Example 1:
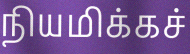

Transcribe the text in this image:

நியமிக்கச்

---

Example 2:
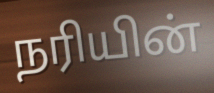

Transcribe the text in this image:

நரியின்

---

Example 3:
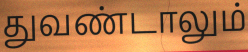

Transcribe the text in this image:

துவண்டாலும்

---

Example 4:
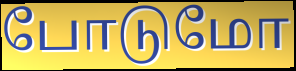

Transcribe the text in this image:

போடுமோ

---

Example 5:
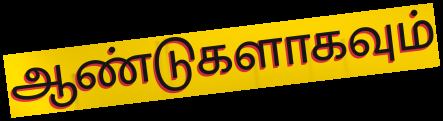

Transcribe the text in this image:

ஆண்டுகளாகவும்